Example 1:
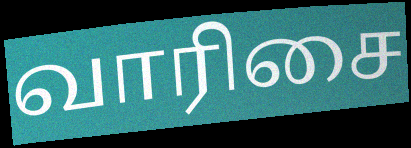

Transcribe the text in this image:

வாரிசை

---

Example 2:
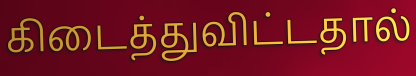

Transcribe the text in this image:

கிடைத்துவிட்டதால்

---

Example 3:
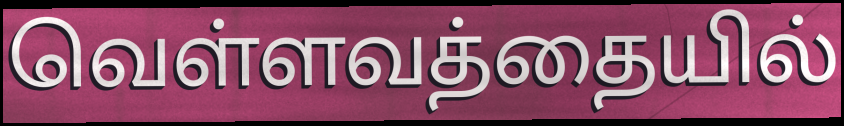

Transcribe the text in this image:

வெள்ளவத்தையில்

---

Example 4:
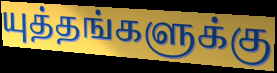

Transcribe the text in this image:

யுத்தங்களுக்கு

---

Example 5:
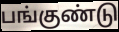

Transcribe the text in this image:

பங்குண்டு